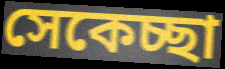
সেকেচ্ছা